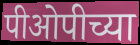
पीओपीच्या